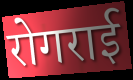
रोगराई